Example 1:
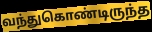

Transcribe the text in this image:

வந்துகொண்டிருந்த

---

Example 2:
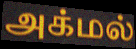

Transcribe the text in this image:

அக்மல்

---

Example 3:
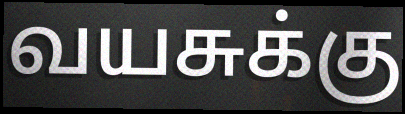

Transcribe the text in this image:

வயசுக்கு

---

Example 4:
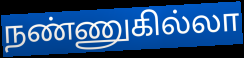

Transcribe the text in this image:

நண்ணுகில்லா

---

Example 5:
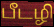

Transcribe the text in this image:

பீடழி